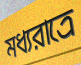
মধ্যরাত্রে